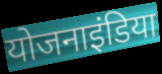
योजनाइंडिया